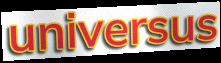
universus